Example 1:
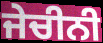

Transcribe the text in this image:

ਜੇਚੀਨੀ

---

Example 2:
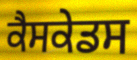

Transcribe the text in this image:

ਕੈਸਕੇਡਸ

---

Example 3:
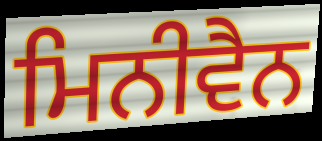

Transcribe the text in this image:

ਮਿਨੀਵੈਨ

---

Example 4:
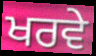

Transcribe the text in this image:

ਖਰਵੇ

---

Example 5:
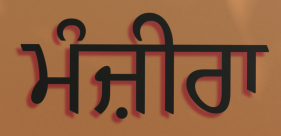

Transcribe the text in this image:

ਮੰਜ਼ੀਰਾ